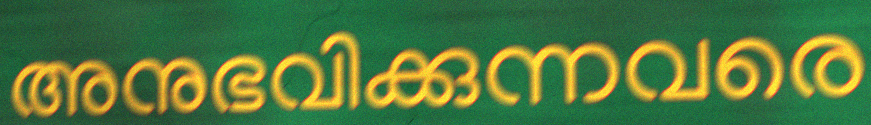
അനുഭവിക്കുന്നവരെ